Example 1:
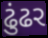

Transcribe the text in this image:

ઢુંઢર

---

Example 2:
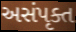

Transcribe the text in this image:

અસંપૃક્ત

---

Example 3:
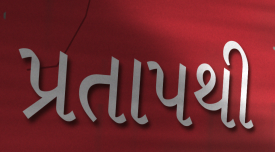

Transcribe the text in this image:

પ્રતાપથી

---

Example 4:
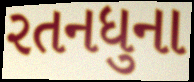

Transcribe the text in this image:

રતનધુના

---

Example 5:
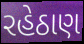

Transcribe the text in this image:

રહેઠાણ